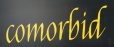
comorbid